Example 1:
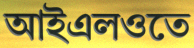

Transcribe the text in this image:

আইএলওতে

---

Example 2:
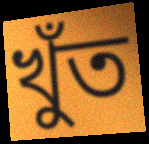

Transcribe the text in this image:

খুঁত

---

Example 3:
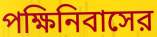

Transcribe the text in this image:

পক্ষিনিবাসের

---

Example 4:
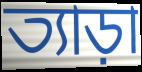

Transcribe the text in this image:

ত্যাড়া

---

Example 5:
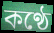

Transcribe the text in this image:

কণ্ঠে